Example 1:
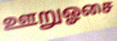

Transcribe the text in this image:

ஊறுஓசை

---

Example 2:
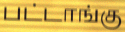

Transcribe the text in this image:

பட்டாங்கு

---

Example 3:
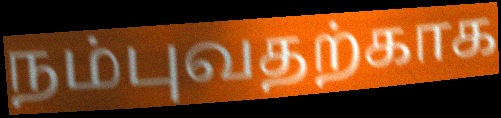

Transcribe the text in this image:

நம்புவதற்காக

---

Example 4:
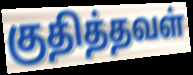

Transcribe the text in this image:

குதித்தவள்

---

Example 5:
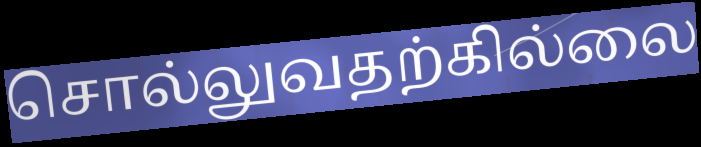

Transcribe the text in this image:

சொல்லுவதற்கில்லை